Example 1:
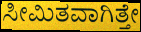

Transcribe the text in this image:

ಸೀಮಿತವಾಗಿತ್ತೇ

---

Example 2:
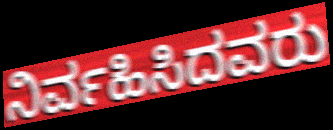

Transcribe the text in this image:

ನಿರ್ವಹಿಸಿದವರು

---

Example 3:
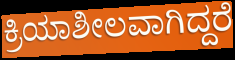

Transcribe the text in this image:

ಕ್ರಿಯಾಶೀಲವಾಗಿದ್ದರೆ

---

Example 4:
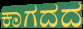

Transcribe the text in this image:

ಕಾಗದದ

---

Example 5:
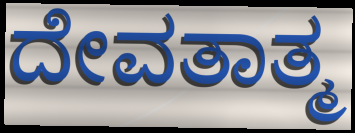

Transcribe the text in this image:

ದೇವತಾತ್ಮ